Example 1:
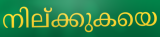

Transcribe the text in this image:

നില്ക്കുകയെ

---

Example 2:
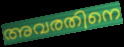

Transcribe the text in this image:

അവരതിനെ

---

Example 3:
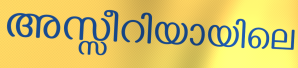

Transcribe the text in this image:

അസ്സീറിയായിലെ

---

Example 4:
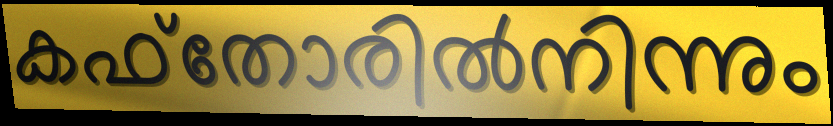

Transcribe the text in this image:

കഫ്തോരിൽനിന്നും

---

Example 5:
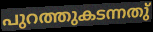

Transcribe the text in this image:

പുറത്തുകടന്നതു്